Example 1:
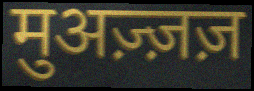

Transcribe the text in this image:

मुअज़्ज़ज़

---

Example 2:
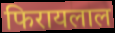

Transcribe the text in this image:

फिरायलाल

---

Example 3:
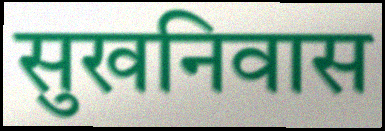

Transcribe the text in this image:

सुखनिवास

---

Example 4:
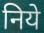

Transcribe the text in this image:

निये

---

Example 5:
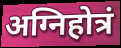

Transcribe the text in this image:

अग्निहोत्रं